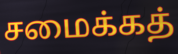
சமைக்கத்